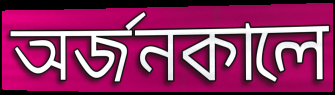
অর্জনকালে